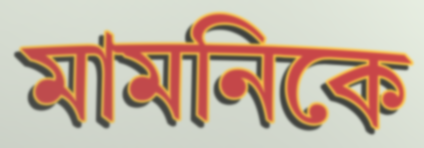
মামনিকে